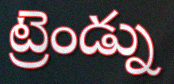
ట్రెండ్ను